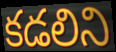
కడలిని